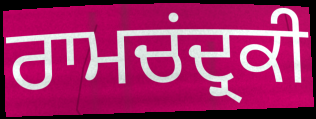
ਰਾਮਚਂਦ੍ਰਕੀ